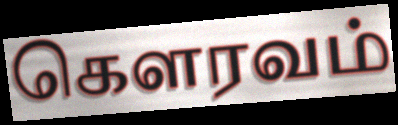
கெளரவம்